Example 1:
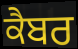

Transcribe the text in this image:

ਕੈਬਰ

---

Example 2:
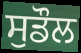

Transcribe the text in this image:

ਸੁਡੌਲ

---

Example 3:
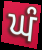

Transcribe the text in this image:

ਘੰ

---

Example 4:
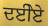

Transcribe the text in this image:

ਦਈੇਏ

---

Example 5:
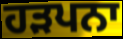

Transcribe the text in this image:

ਹੜਪਨਾ